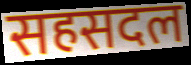
सहसदल